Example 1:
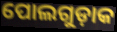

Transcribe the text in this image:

ପୋଲଗୁଡ଼ାକ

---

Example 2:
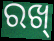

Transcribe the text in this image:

ରଖ୍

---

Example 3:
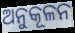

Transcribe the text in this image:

ଅନୁକୂଳନ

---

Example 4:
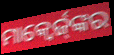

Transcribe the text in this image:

ମାକ୍ୱେର୍ଜ୍‌ଙ୍କର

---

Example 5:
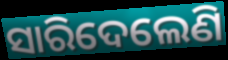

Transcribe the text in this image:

ସାରିଦେଲେଣି